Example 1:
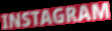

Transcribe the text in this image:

INSTAGRAM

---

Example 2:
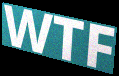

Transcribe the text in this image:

WTF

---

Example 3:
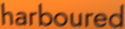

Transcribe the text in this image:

harboured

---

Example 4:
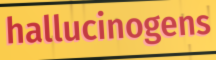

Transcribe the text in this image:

hallucinogens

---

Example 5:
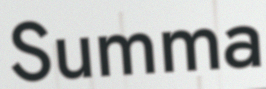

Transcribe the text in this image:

Summa